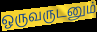
ஒருவருடனும்